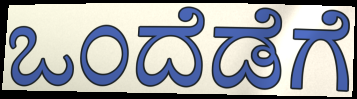
ಒಂದೆಡೆಗೆ